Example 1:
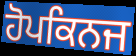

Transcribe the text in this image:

ਹੋਪਕਿਨਜ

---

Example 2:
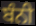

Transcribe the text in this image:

ਬੰਨੀ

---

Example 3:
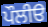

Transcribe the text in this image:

ਪੌਲੀੳ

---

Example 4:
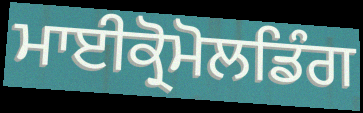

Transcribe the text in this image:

ਮਾਈਕ੍ਰੋਮੋਲਡਿੰਗ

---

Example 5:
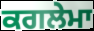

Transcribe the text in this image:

ਕਗਲੇਮਾ